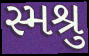
સ્મશ્રુ